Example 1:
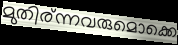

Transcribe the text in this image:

മുതിര്ന്നവരുമൊക്കെ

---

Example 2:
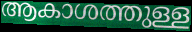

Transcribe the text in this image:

ആകാശത്തുള്ള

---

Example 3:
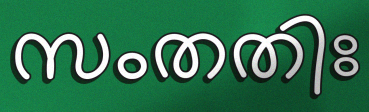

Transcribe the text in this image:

സംതതിഃ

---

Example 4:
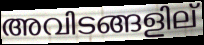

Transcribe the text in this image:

അവിടങ്ങളില്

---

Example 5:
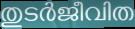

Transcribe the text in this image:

തുടർജീവിത